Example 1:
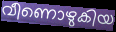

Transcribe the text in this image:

വീണൊഴുകിയ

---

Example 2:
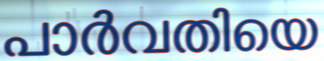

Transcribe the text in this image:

പാർവതിയെ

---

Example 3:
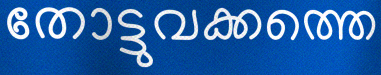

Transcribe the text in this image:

തോട്ടുവക്കത്തെ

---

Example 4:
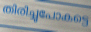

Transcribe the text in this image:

തിരിച്ചുപോകട്ടെ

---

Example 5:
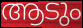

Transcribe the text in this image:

ആടും